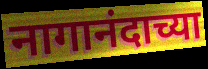
नागानंदाच्या